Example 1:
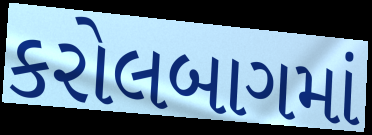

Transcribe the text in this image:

કરોલબાગમાં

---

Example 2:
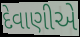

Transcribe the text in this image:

દેવાણીએ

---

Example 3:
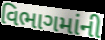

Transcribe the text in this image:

વિભાગમાંની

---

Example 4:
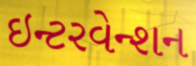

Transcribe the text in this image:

ઇન્ટરવેન્શન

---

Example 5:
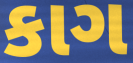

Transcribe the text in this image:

કાગ